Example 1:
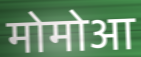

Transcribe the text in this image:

मोमोआ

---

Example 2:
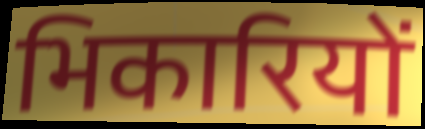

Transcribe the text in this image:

भिकारियों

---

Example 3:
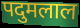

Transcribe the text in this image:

पदुमलाल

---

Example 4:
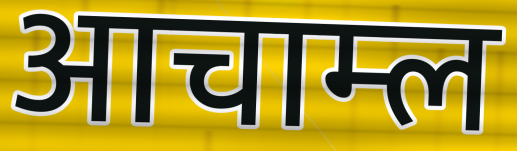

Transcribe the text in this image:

आचाम्ल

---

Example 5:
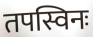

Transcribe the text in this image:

तपस्विनः